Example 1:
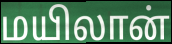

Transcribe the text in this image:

மயிலான்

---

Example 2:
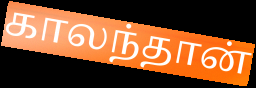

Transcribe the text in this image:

காலந்தான்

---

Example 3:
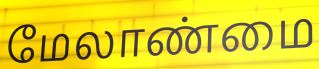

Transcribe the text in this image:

மேலாண்மை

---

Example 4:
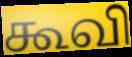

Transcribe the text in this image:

கூவி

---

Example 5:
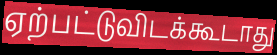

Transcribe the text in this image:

ஏற்பட்டுவிடக்கூடாது